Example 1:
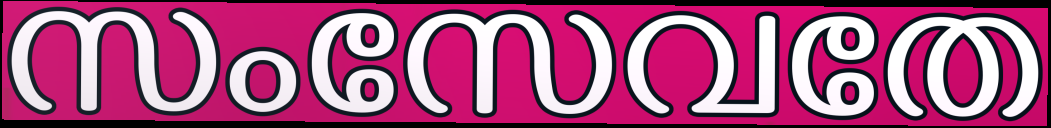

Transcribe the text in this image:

സംസേവതേ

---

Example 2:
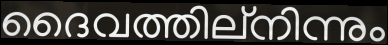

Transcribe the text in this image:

ദൈവത്തില്നിന്നും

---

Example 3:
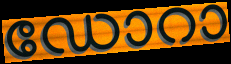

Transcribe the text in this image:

ഡോറാ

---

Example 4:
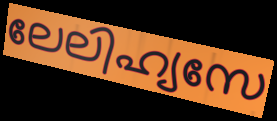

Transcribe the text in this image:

ലേലിഹ്യസേ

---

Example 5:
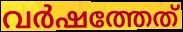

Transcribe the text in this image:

വർഷത്തേത്